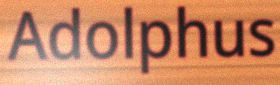
Adolphus